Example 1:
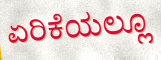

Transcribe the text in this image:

ಏರಿಕೆಯಲ್ಲೂ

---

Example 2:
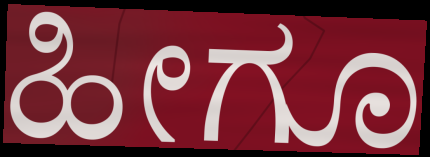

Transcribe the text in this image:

ಹೀಗೂ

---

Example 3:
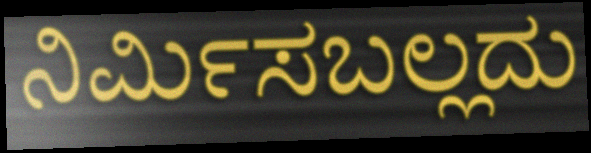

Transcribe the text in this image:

ನಿರ್ಮಿಸಬಲ್ಲದು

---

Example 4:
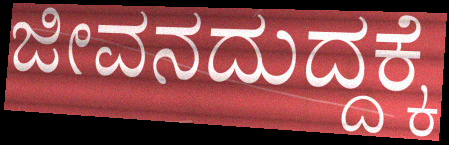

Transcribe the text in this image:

ಜೀವನದುದ್ದಕ್ಕೆ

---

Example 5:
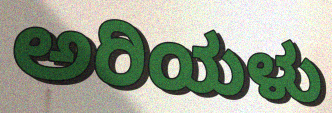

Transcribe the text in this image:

ಅರಿಯಳು